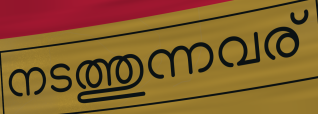
നടത്തുന്നവര്